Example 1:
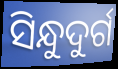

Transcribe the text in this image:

ସିନ୍ଧୁଦୁର୍ଗ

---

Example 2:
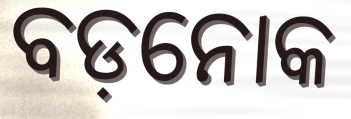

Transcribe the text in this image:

ବଡ଼ନୋକ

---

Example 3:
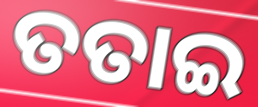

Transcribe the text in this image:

ତତାଇ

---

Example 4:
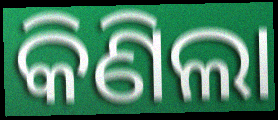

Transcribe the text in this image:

କିଣିଲା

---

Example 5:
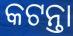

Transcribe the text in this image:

କଟନ୍ତା